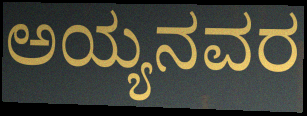
ಅಯ್ಯನವರ